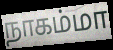
நாகம்மா